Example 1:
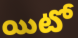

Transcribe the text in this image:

యిటో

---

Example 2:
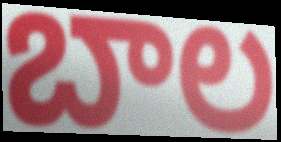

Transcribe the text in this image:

బాల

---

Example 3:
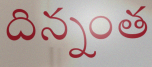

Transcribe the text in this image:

దిన్నంత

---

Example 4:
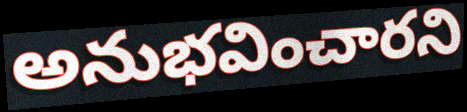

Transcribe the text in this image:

అనుభవించారని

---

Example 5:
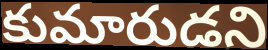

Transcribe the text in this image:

కుమారుడని